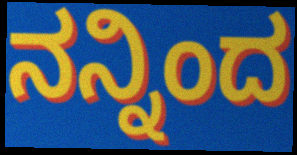
ನನ್ನಿಂದ